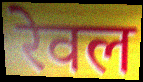
रेवल